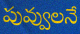
పువ్వులనే